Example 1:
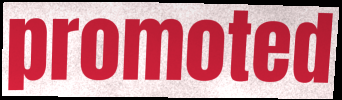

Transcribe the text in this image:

promoted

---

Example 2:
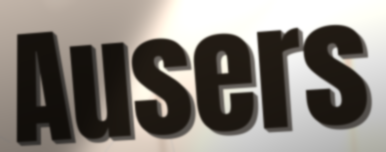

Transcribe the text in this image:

Ausers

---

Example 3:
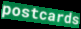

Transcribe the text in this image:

postcards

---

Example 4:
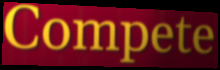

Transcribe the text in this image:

Compete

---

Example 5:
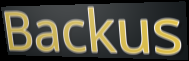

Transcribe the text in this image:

Backus